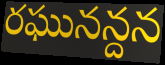
రఘునన్దన